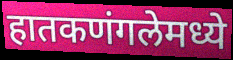
हातकणंगलेमध्ये